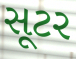
સૂટર